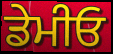
ਡੇਮੀਓ